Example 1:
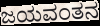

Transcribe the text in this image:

ಜಯವಂತನ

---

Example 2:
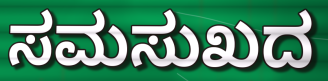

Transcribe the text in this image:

ಸಮಸುಖದ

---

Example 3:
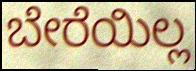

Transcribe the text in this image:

ಬೇರೆಯಿಲ್ಲ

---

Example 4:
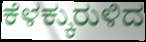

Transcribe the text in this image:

ಕೆಳಕ್ಕುರುಳಿದ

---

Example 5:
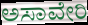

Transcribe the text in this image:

ಅಸಾವೇರಿ